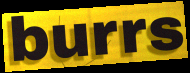
burrs